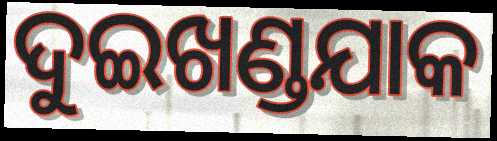
ଦୁଇଖଣ୍ଡଯାକ